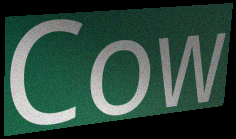
Cow